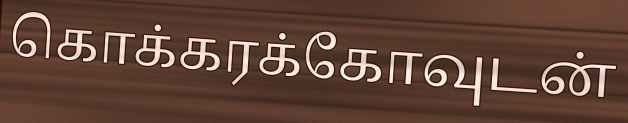
கொக்கரக்கோவுடன்